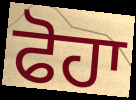
ਫੋਹਾ